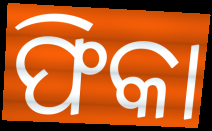
ଫିକା